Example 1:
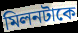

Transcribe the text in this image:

মিলনটাকে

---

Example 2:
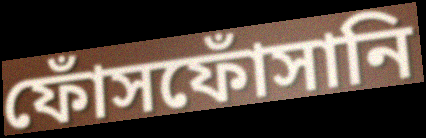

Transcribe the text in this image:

ফোঁসফোঁসানি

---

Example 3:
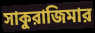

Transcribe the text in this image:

সাকুরাজিমার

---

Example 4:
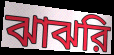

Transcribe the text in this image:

ঝাঝরি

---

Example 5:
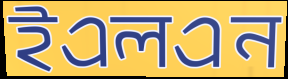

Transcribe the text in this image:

ইএলএন